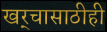
खर्चासाठीही